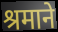
श्रमाने